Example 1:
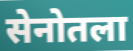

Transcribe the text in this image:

सेनोतला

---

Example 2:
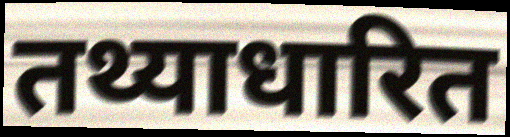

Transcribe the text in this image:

तथ्याधारित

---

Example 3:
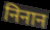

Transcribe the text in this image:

निनान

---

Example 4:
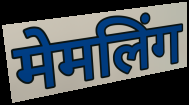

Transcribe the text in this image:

मेमलिंग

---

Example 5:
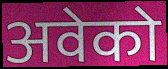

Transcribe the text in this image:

अवेको